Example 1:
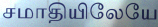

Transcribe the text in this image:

சமாதியிலேயே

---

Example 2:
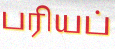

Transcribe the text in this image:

பரியப்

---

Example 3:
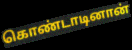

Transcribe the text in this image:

கொண்டாடினான்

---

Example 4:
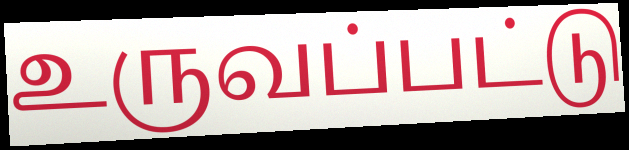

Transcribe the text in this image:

உருவப்பட்டு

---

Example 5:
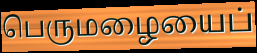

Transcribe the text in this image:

பெருமழையைப்